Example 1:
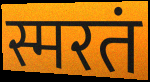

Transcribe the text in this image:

स्मरतं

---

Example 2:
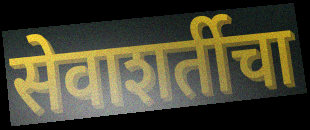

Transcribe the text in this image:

सेवाशर्तीचा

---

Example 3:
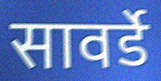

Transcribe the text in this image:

सावर्डे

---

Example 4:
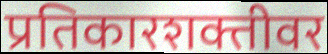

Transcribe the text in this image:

प्रतिकारशक्तीवर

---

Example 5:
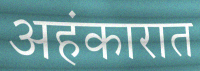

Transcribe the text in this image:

अहंकारात